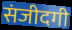
संजीदगी